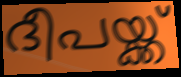
ദീപയ്ക്ക്